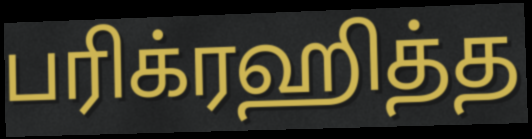
பரிக்ரஹித்த